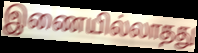
இணையில்லாதது